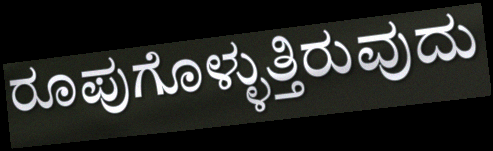
ರೂಪುಗೊಳ್ಳುತ್ತಿರುವುದು